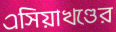
এসিয়াখণ্ডের